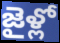
జైళ్లో